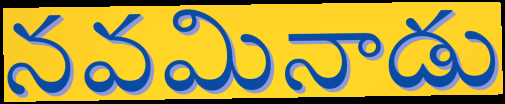
నవమినాడు